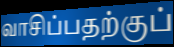
வாசிப்பதற்குப்